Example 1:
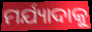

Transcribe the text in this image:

ମର୍ଯ୍ୟାଦାକୁ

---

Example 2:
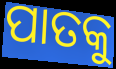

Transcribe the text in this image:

ପାତକୁ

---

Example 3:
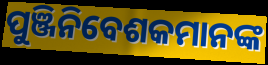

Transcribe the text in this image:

ପୁଞ୍ଜିନିବେଶକମାନଙ୍କ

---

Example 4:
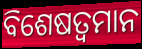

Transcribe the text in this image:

ବିଶେଷତ୍ଵମାନ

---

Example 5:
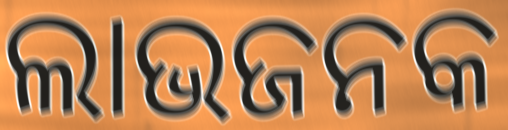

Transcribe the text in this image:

ଲାଭଜନକ